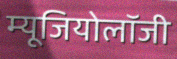
म्यूजियोलॉजी